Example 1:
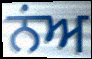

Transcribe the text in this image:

ਨਂਅ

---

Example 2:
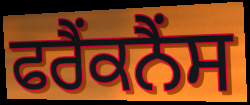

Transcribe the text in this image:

ਫਰੈਂਕਨੈਂਸ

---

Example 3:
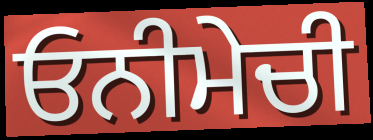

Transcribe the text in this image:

ਓਨੀਮੇਚੀ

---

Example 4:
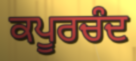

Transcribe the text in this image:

ਕਪੂਰਚੰਦ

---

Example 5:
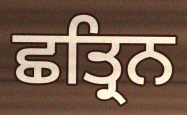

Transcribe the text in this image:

ਛਤ੍ਰਿਨ